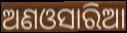
ଅଣଓସାରିଆ